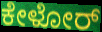
ಕೇಳೋರ್